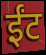
ईंट